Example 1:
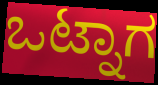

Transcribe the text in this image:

ಒಟ್ನಾಗ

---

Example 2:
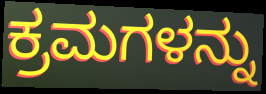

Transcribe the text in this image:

ಕ್ರಮಗಳನ್ನು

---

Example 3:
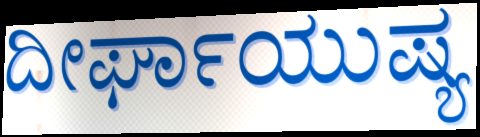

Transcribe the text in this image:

ದೀರ್ಘಾಯುಷ್ಯ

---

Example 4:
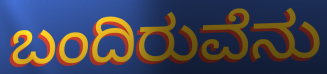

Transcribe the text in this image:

ಬಂದಿರುವೆನು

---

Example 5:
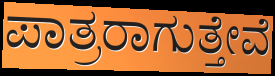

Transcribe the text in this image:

ಪಾತ್ರರಾಗುತ್ತೇವೆ